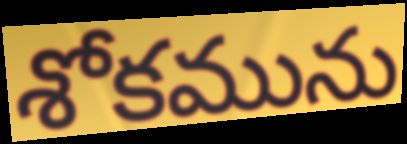
శోకమును